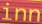
inn